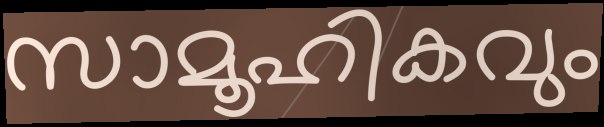
സാമൂഹികവും